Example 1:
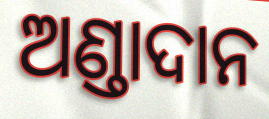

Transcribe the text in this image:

ଅଣ୍ଡାଦାନ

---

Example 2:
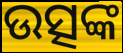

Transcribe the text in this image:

ଉତ୍ସଙ୍କ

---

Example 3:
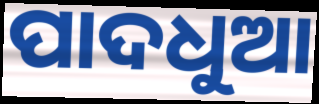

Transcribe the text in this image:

ପାଦଧୁଆ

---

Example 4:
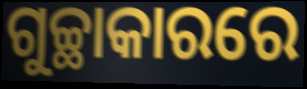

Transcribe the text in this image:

ଗୁଚ୍ଛାକାରରେ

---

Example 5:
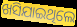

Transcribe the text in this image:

ଖସିଯାଇଥିଲେ